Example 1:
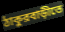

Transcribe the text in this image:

ঠাকুরবাড়ীতে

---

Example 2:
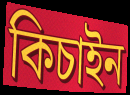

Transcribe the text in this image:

কিচাইন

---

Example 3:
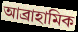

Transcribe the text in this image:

আব্রাহামিক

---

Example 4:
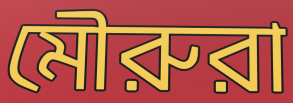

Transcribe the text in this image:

মৌরুরা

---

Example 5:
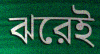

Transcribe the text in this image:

ঝরেই